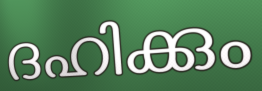
ദഹിക്കും